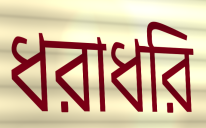
ধরাধরি